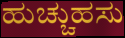
ಹುಚ್ಚುಹಸು